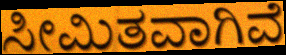
ಸೀಮಿತವಾಗಿವೆ